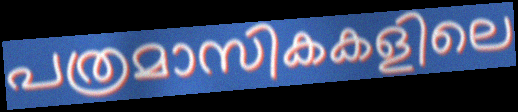
പത്രമാസികകളിലെ